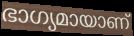
ഭാഗ്യമായാണ്